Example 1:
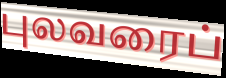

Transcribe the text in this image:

புலவரைப்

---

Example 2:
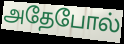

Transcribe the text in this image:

அதேபோல்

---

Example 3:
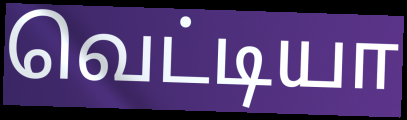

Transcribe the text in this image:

வெட்டியா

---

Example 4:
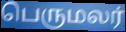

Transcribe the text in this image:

பெருமலர்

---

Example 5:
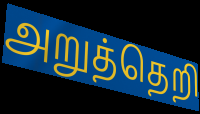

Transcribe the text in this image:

அறுத்தெறி